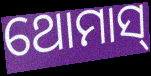
ଥୋମାସ୍